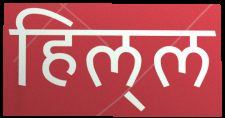
हिल्ल